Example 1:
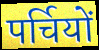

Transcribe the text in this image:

पर्चियों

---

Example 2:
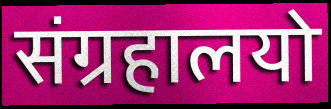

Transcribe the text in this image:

संग्रहालयो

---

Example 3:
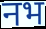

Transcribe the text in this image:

नभ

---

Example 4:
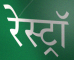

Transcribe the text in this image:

रेस्ट्रॉ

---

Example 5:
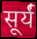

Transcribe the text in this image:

सूर्य॑